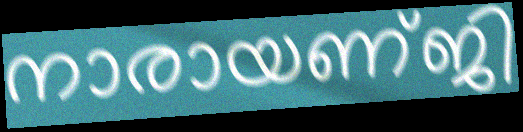
നാരായണ്ജി